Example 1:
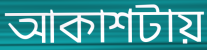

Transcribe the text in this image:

আকাশটায়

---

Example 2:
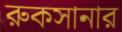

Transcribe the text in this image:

রুকসানার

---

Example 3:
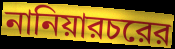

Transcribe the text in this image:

নানিয়ারচরের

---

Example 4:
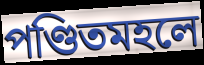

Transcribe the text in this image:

পণ্ডিতমহলে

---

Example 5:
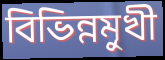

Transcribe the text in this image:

বিভিন্নমুখী